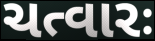
ચત્વારઃ